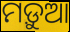
ମଡ଼ୁଆ